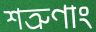
শত্রুণাং